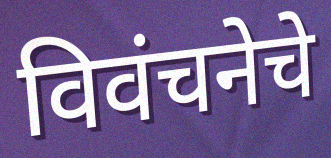
विवंचनेचे